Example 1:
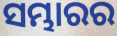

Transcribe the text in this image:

ସମ୍ଭାରର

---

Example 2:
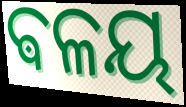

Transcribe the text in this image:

ଵଳୟ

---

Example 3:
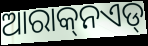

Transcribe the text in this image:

ଆରାକ୍‌ନଏଡ୍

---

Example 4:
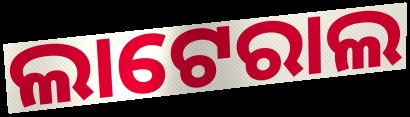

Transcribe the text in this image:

ଲାଟେରାଲ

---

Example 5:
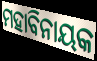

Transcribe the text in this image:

ମହାବିନାୟକ